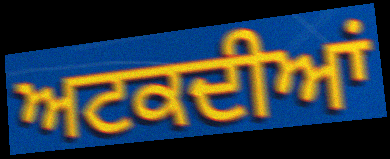
ਅਟਕਦੀਆਂ